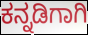
ಕನ್ನಡಿಗಾಗಿ